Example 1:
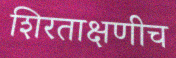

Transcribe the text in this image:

शिरताक्षणीच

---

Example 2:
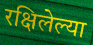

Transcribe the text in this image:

रक्षिलेल्या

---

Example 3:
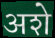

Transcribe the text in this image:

अशे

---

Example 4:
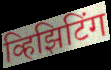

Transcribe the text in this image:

व्हिझिटिंग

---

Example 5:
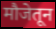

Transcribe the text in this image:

मौजेतून